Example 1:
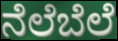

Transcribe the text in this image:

ನೆಲೆಬೆಲೆ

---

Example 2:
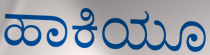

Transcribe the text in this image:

ಹಾಕಿಯೂ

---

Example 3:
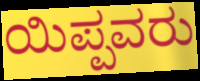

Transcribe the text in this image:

ಯಿಪ್ಪವರು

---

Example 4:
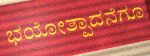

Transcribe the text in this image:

ಭಯೋತ್ಪಾದನೆಗೂ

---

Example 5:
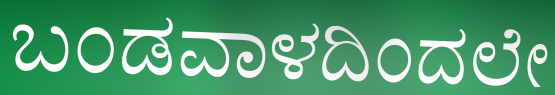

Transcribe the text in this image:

ಬಂಡವಾಳದಿಂದಲೇ